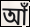
আঁ